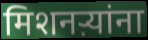
मिशनऱ्‍यांना